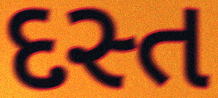
દસ્ત